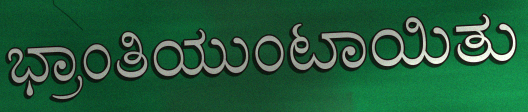
ಭ್ರಾಂತಿಯುಂಟಾಯಿತು